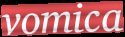
vomica